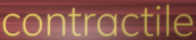
contractile